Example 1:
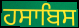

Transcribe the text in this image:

ਹਸਾਬਿਸ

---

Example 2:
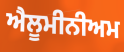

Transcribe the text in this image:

ਐਲੂਮੀਨੀਅਮ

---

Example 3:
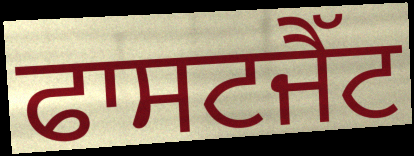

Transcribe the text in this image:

ਫਾਸਟਜੈੱਟ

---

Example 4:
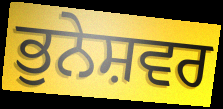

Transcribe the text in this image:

ਭੁਨੇਸ਼ਵਰ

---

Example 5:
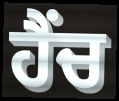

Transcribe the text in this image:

ਹੈਂਚ